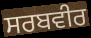
ਸਰਬਵੀਰ